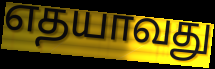
எதயாவது